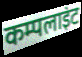
कम्पलाइंट